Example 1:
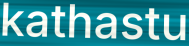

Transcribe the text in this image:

kathastu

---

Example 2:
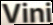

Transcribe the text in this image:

Vini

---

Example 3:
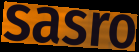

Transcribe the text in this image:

sasro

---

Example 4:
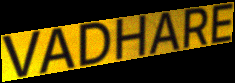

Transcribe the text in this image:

VADHARE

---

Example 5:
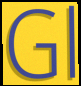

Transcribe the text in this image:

Gl